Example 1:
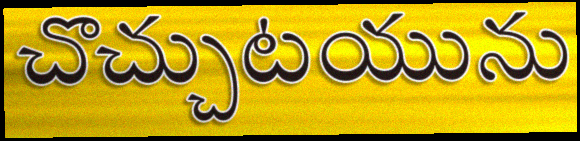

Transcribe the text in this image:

చొచ్చుటయును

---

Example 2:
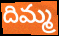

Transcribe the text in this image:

దిమ్మ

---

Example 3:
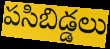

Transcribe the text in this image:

పసిబిడ్డలు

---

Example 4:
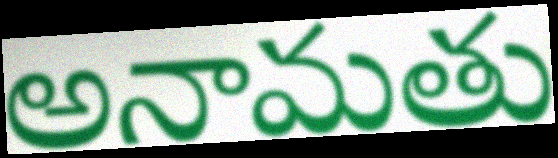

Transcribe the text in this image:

అనామతు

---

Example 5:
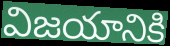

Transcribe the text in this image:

విజయానికి